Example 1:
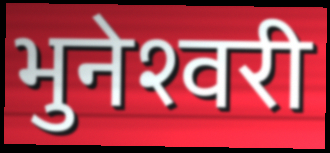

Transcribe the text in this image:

भुनेश्वरी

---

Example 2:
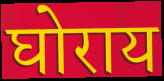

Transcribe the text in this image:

घोराय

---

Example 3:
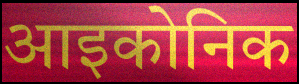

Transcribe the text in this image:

आइकोनिक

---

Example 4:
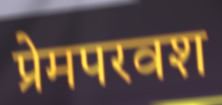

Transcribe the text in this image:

प्रेमपरवश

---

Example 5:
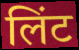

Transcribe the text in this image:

लिंट